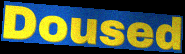
Doused